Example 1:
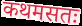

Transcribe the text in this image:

कथमसतः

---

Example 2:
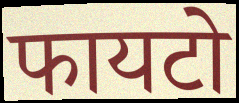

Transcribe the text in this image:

फायटो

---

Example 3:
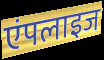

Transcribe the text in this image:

एंपलाइज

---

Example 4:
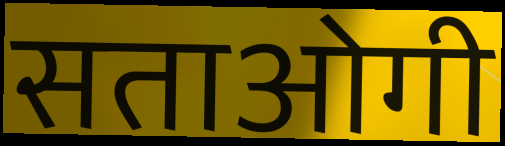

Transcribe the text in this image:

सताओगी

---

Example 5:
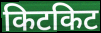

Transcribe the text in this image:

किटकिट